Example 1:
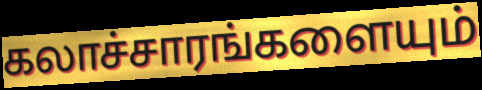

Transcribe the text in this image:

கலாச்சாரங்களையும்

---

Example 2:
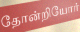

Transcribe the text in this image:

தோன்றியோர்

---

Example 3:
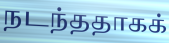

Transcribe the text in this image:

நடந்ததாகக்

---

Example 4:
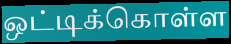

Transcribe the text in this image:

ஒட்டிக்கொள்ள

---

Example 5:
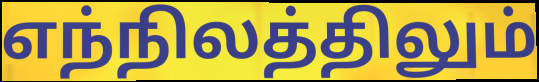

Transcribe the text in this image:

எந்நிலத்திலும்